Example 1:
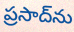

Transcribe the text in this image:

ప్రసాద్‌ను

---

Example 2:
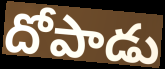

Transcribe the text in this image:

దోపాడు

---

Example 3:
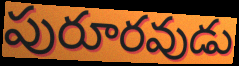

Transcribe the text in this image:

పురూరవుడు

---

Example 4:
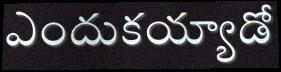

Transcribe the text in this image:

ఎందుకయ్యాడో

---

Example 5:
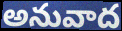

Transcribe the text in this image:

అనువాద